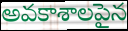
అవకాశాలపైన